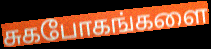
சுகபோகங்களை